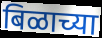
बिळाच्या